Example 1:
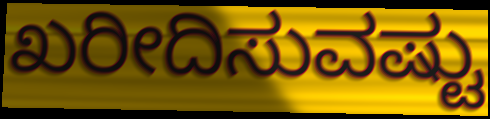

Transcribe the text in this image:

ಖರೀದಿಸುವಷ್ಟು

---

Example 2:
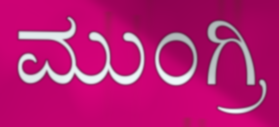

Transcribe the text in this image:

ಮುಂಗ್ರಿ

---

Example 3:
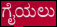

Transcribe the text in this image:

ಗೈಯಲು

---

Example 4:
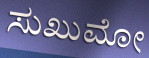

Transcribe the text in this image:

ಸುಖುಮೋ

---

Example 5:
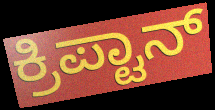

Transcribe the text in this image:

ಕ್ರಿಪ್ಟಾನ್